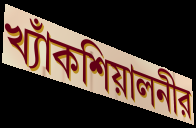
খ্যাঁকশিয়ালনীর